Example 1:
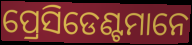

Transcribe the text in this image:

ପ୍ରେସିଡେଣ୍ଟମାନେ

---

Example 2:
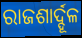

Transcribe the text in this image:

ରାଜଶାର୍ଦ୍ଦୂଳ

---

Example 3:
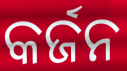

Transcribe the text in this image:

କର୍ଜନ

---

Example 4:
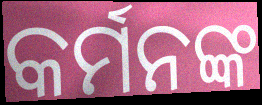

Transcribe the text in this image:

କର୍ମନଙ୍କ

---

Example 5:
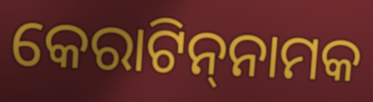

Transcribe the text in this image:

କେରାଟିନ୍‌ନାମକ